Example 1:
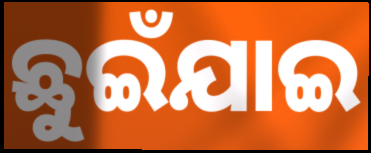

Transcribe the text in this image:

ଛୁଇଁଯାଇ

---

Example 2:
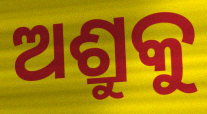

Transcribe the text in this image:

ଅଶ୍ରୁକୁ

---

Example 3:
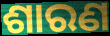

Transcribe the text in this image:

ଶାରଣ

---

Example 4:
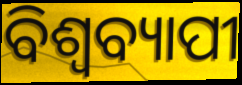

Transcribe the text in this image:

ବିଶ୍ୱବ୍ୟାପୀ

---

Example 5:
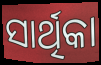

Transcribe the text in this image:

ସାର୍ଥିକା